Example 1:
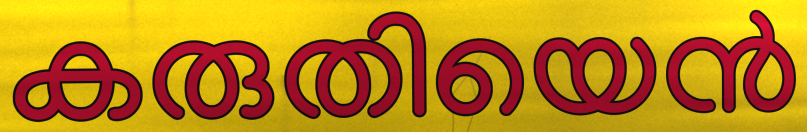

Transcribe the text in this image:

കരുതിയെൻ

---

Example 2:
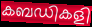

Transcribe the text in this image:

കബഡികളി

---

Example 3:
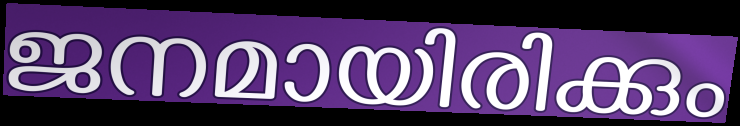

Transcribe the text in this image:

ജനമായിരിക്കും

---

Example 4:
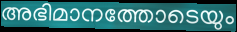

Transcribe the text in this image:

അഭിമാനത്തോടെയും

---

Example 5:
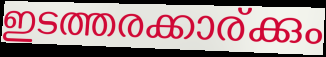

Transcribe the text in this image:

ഇടത്തരക്കാര്ക്കും